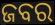
ଜବର